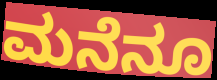
ಮನೆನೂ